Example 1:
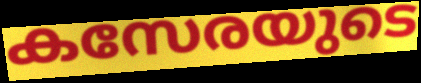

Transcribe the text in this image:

കസേരയുടെ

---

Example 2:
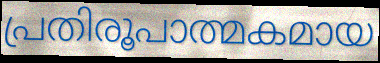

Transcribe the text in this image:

പ്രതിരൂപാത്മകമായ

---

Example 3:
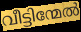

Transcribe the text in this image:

വീട്ടിന്മേൽ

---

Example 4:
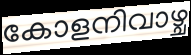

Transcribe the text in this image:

കോളനിവാഴ്ച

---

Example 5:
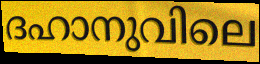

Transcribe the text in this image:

ദഹാനുവിലെ